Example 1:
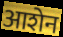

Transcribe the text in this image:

आशेन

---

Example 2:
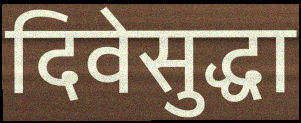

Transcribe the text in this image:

दिवेसुद्धा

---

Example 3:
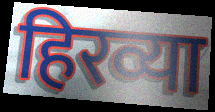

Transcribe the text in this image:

हिरव्‍या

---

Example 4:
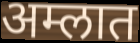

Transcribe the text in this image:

अम्लात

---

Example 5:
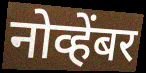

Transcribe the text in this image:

नोव्हेंबर